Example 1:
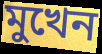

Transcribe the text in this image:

মুখেন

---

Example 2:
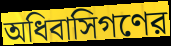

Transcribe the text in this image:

অধিবাসিগণের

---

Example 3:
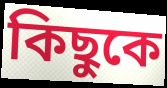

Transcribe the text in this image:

কিছুকে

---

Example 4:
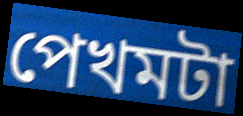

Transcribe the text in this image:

পেখমটা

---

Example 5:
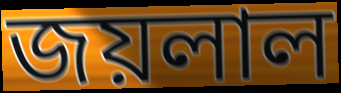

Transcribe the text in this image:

জয়লাল